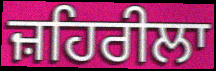
ਜ਼ਹਿਰੀਲਾ